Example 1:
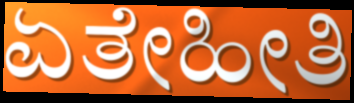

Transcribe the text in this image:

ಏತೇಹೀತಿ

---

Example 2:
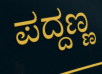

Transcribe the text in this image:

ಪದ್ದಣ್ಣ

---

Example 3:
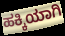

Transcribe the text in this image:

ಹಕ್ಕಿಯಾಗಿ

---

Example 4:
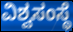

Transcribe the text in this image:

ವಿಶ್ವಸಂಸ್ಥೆ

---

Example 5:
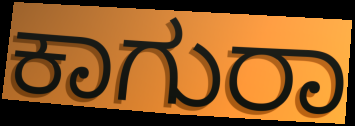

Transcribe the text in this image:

ಕಾಗುರಾ